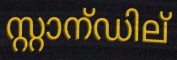
സ്റ്റാന്ഡില്